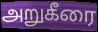
அறுகீரை